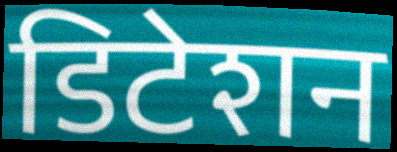
डिटेशन